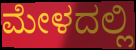
ಮೇಳದಲ್ಲಿ